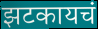
झटकायचं